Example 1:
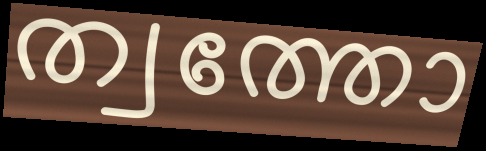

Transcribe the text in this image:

ത്വത്തോ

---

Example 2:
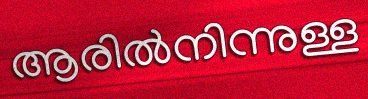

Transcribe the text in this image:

ആരിൽനിന്നുള്ള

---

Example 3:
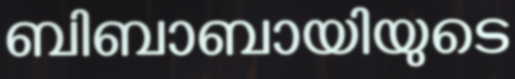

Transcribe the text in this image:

ബിബാബായിയുടെ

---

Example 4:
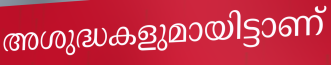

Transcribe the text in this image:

അശുദ്ധകളുമായിട്ടാണ്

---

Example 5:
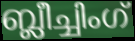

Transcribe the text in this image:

ബ്ലീച്ചിംഗ്